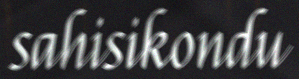
sahisikondu